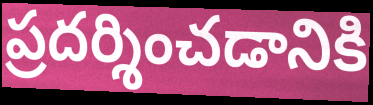
ప్రదర్శించడానికి